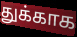
துக்காக